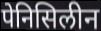
पेनिसिलीन